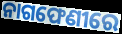
ନାଗଫେଣୀରେ